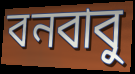
বনবাবু